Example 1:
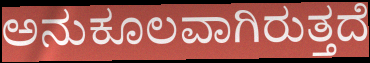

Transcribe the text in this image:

ಅನುಕೂಲವಾಗಿರುತ್ತದೆ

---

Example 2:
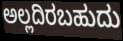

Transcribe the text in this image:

ಅಲ್ಲದಿರಬಹುದು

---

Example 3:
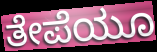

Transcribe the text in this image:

ತೇಪೆಯೂ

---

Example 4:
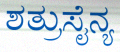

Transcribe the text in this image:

ಶತ್ರುಸೈನ್ಯ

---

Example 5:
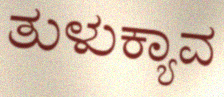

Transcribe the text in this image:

ತುಳುಕ್ಯಾವ